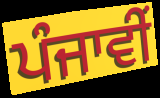
ਪੰਜਾਵੀਂ